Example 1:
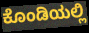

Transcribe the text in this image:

ಕೊಂಡಿಯಲ್ಲಿ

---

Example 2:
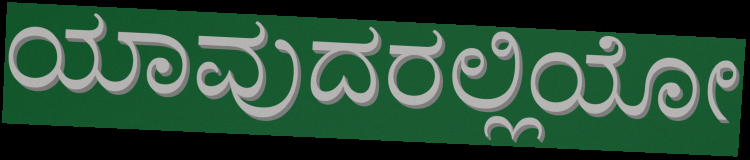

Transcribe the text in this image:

ಯಾವುದರಲ್ಲಿಯೋ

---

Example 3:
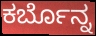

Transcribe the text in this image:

ಕರ್ಬೊನ್ನ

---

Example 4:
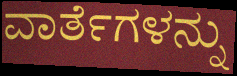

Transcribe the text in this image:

ವಾರ್ತೆಗಳನ್ನು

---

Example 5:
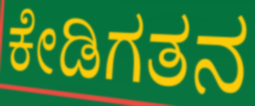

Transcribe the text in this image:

ಕೇಡಿಗತನ